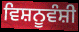
ਵਿਸ਼ਨੂਵੰਸ਼ੀ